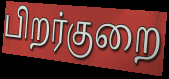
பிறர்குறை